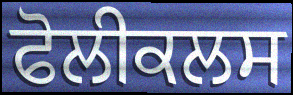
ਫੋਲੀਕਲਸ